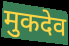
मुकदेव